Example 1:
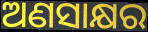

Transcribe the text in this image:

ଅଣସାକ୍ଷର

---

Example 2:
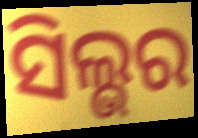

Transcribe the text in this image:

ସିଲ୍ଭର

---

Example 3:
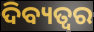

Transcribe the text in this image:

ଦିବ୍ୟତ୍ବର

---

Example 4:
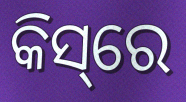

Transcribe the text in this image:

କିସ୍‌ରେ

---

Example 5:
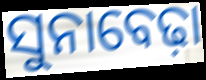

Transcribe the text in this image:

ସୁନାବେଢ଼ା